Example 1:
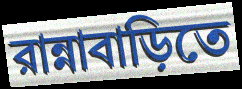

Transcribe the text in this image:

রান্নাবাড়িতে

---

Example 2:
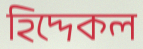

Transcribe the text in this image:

হিদ্দেকল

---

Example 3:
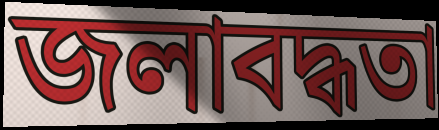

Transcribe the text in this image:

জলাবদ্ধতা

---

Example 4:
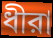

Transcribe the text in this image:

ধীরা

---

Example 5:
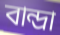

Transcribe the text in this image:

বান্দ্রা